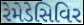
રેમેડેસિવિર